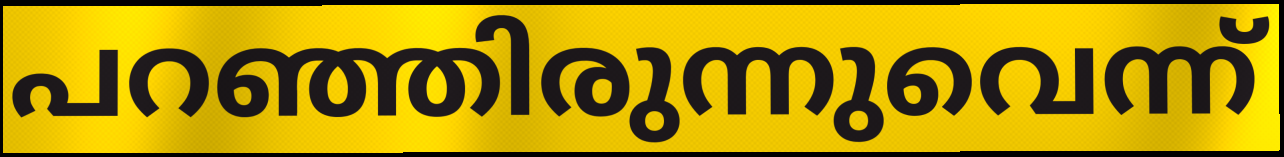
പറഞ്ഞിരുന്നുവെന്ന്